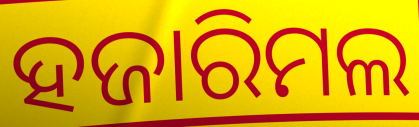
ହଜାରିମଲ